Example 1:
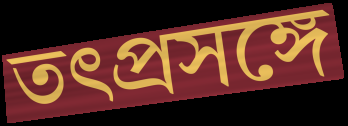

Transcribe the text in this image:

তৎপ্রসঙ্গে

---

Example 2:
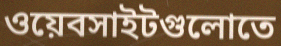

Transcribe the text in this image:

ওয়েবসাইটগুলোতে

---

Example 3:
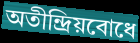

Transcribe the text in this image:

অতীন্দ্রিয়বোধে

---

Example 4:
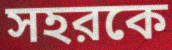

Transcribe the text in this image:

সহরকে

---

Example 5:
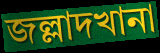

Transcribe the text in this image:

জল্লাদখানা